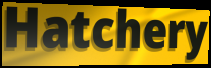
Hatchery